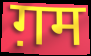
ग़म